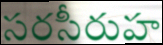
సరసీరుహ